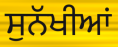
ਸੁਨੱਖੀਆਂ